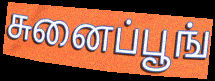
சுனைப்பூங்